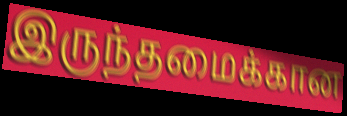
இருந்தமைக்கான